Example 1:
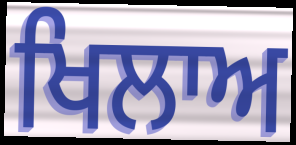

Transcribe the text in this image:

ਖਿਲਾਅ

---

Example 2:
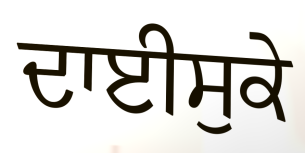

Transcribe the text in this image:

ਦਾਈਸੁਕੇ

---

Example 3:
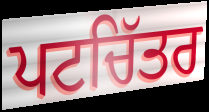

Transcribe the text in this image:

ਪਟਚਿੱਤਰ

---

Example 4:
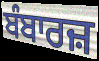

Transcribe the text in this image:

ਬੰਬਾਰਜ਼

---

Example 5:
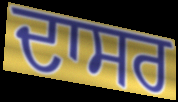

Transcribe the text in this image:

ਦਾਸਰ